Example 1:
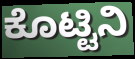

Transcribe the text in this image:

ಕೊಟ್ಟಿನಿ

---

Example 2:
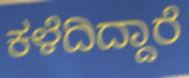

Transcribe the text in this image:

ಕಳೆದಿದ್ದಾರೆ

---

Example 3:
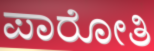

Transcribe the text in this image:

ಪಾರೋತಿ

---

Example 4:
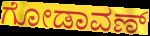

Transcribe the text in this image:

ಗೋಡಾವಣ್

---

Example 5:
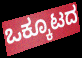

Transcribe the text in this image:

ಒಕ್ಕೂಟದ